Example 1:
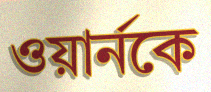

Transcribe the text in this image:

ওয়ার্নকে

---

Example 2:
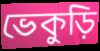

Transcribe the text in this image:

ভেকুড়ি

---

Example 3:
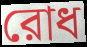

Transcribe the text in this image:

রোধ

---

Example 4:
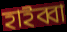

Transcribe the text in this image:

হাইব্বা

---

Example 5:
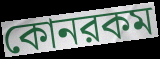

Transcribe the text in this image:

কোনরকম